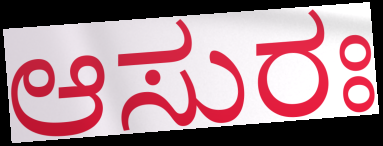
ಆಸುರಃ